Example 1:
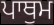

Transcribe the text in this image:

ਪਾਥੁਮ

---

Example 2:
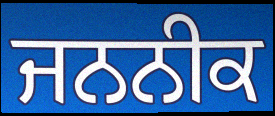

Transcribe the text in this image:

ਜਨਨੀਕ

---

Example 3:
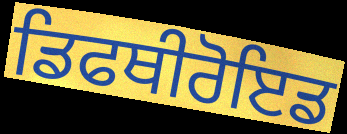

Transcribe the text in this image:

ਡਿਫਥੀਰੋਇਡ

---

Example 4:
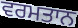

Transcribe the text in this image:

ਵਰਮਤਾਨ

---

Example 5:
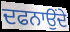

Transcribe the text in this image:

ਦਫਨਾਉਂਦੇ